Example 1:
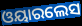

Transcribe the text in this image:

ଓୟାରଲେସ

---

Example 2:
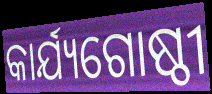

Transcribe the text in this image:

କାର୍ଯ୍ୟଗୋଷ୍ଠୀ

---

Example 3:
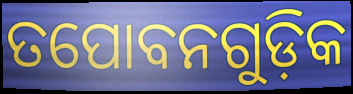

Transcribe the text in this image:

ତପୋବନଗୁଡ଼ିକ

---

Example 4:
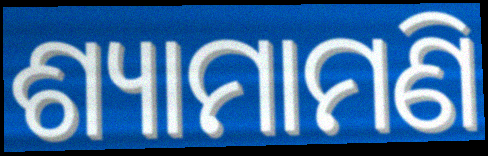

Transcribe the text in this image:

ଶ୍ୟାମାମଣି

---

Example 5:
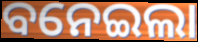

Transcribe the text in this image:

ବନେଇଲା